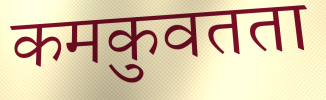
कमकुवतता